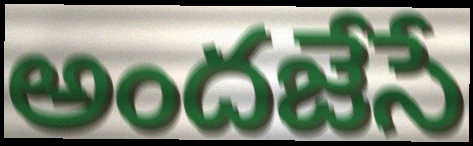
అందజేసే